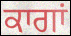
ਕਾਗਾਂ